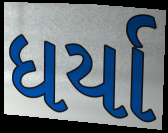
ધર્યા